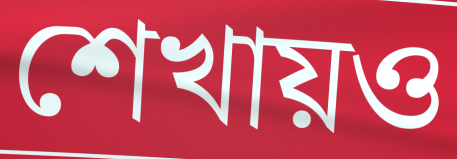
শেখায়ও